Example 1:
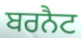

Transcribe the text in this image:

ਬਰਨੈਟ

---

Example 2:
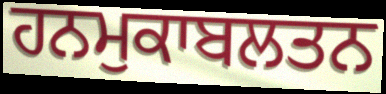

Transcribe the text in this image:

ਹਨਮੁਕਾਬਲਤਨ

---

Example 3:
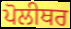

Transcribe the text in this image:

ਪੋਲੀਥਰ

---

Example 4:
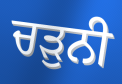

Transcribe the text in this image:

ਚੜੁਨੀ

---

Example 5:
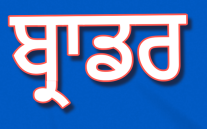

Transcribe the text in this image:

ਬ੍ਰਾਡਰ